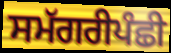
ਸਮੱਗਰੀਪੰਛੀ